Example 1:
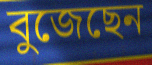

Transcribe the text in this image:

বুজেছেন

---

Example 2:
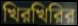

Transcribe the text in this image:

খিরখিরির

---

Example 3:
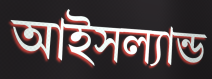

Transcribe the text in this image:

আইসল্যান্ড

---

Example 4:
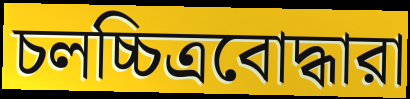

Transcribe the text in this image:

চলচ্চিত্রবোদ্ধারা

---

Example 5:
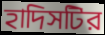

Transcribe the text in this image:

হাদিসটির